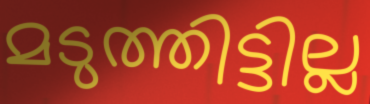
മടുത്തിട്ടില്ല